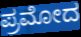
ಪ್ರಮೋದ